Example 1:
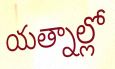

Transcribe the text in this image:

యత్నాల్లో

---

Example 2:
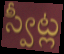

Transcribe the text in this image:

స్వీట్ల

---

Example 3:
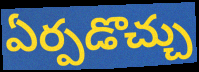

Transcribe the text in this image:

ఏర్పడొచ్చు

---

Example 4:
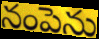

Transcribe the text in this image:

నంపెను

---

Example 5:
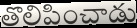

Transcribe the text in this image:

తొలిపించాడు